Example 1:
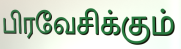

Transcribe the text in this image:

பிரவேசிக்கும்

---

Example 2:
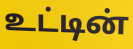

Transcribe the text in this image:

உட்டின்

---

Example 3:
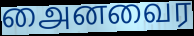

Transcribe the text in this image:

அைனவைர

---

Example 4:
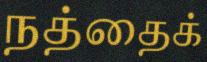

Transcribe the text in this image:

நத்தைக்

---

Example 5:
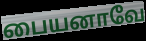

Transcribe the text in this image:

பையனாவே